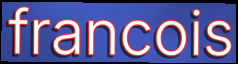
francois